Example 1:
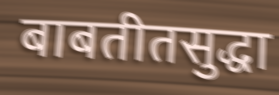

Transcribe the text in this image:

बाबतीतसुद्धा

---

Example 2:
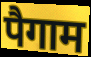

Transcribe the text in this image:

पैगाम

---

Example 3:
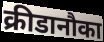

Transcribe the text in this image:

क्रीडानौका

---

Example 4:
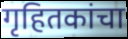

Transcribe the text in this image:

गृहितकांचा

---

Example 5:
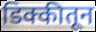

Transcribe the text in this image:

डिक्कीतून